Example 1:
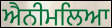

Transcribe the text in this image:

ਐਨੀਮਲਿਆ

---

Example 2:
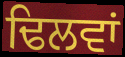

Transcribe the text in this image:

ਢਿਲਵਾਂ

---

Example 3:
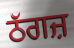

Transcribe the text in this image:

ਠੱਗਜ਼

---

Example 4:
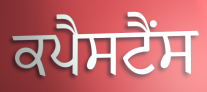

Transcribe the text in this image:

ਕਪੈਸਟੈਂਸ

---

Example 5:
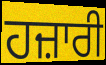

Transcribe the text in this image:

ਹਜ਼ਾਰੀ